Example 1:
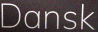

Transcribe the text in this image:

Dansk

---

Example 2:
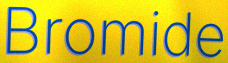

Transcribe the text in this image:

Bromide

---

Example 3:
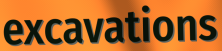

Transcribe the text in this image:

excavations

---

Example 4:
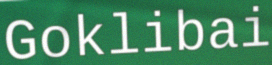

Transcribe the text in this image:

Goklibai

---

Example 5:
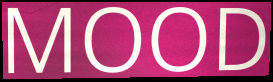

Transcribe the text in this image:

MOOD